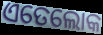
ଏତେଲୋକ